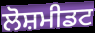
ਲੋਸ਼ਮੀਡਟ